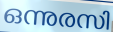
ഒന്നുരസി